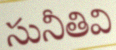
సునీతివి